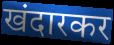
खंदारकर